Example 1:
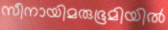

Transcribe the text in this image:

സീനായിമരുഭൂമിയിൽ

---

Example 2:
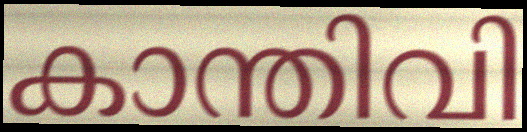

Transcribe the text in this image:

കാന്തിവി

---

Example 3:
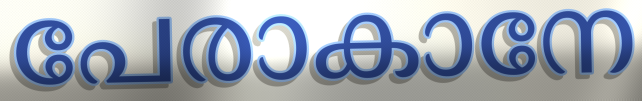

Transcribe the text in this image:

പേരാകാനേ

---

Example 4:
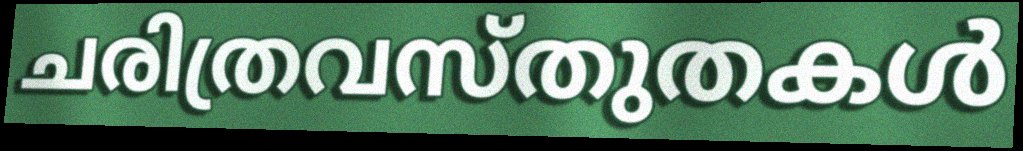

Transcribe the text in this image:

ചരിത്രവസ്തുതകൾ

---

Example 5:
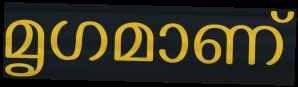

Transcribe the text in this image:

മൃഗമാണ്